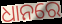
ଧାନରେ